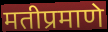
मतीप्रमाणे